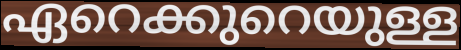
ഏറെക്കുറെയുള്ള